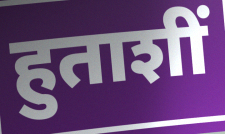
हुताशीं